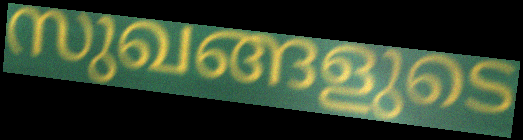
സുഖങ്ങളുടെ